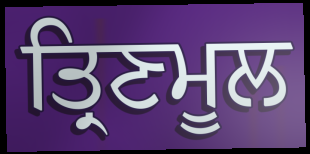
ਤ੍ਰਿਣਮੂਲ